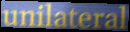
unilateral